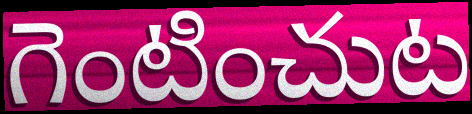
గెంటించుట